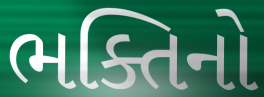
ભક્તિનો